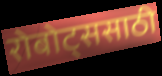
रोबोट्ससाठी